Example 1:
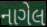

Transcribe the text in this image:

નાગેલ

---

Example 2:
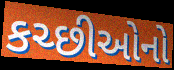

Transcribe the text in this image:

કચ્છીઓનો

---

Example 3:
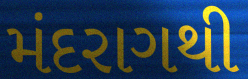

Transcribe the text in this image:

મંદરાગથી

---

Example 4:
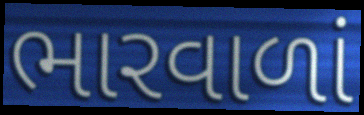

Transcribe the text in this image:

ભારવાળાં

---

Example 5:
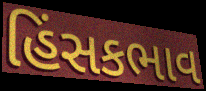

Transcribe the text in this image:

હિંસકભાવ